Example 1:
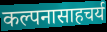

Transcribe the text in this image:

कल्पनासाहचर्य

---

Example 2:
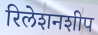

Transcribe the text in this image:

रिलेशनशीप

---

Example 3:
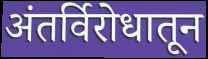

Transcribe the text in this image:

अंतर्विरोधातून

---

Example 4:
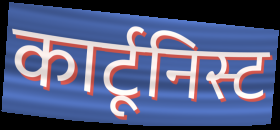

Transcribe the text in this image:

कार्टूनिस्ट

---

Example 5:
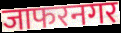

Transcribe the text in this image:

जाफरनगर